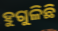
ହୁଗୁଳିଛି